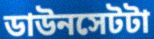
ডাউনসেটটা